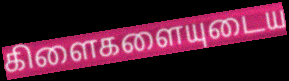
கிளைகளையுடைய